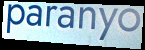
paranyo